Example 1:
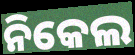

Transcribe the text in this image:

ନିକେଲ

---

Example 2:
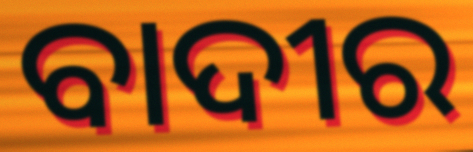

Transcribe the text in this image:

ବାଦୀର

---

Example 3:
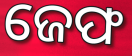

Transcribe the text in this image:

ଜେଫ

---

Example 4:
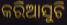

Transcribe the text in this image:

କରିଆସୁଚି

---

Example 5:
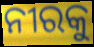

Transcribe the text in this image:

ନୀରକୁ